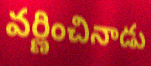
వర్ణించినాడు